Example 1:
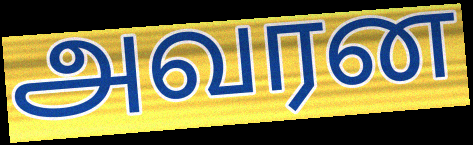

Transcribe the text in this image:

அவரன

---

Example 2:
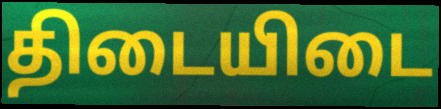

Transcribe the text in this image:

திடையிடை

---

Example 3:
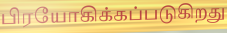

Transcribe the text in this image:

பிரயோகிக்கப்படுகிறது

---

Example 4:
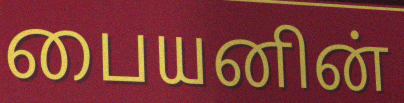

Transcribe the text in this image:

பையனின்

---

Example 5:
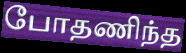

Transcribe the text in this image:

போதணிந்த